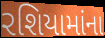
રશિયામાંના